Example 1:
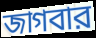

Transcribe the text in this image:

জাগবার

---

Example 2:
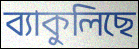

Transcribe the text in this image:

ব্যাকুলিছে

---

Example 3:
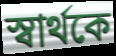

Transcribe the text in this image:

স্বার্থকে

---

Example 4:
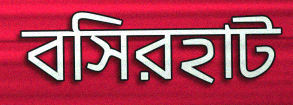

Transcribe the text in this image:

বসিরহাট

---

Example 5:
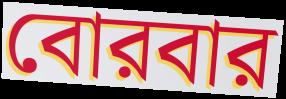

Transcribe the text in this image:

বোরবার